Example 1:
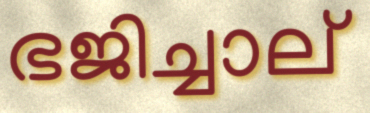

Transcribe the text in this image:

ഭജിച്ചാല്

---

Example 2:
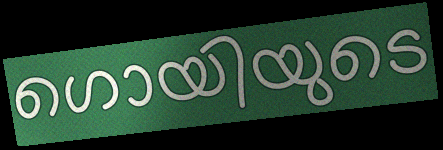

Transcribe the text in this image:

ഗൊയിയുടെ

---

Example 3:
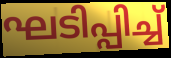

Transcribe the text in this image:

ഘടിപ്പിച്ച്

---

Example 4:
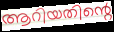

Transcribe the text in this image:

ആറിയതിന്റെ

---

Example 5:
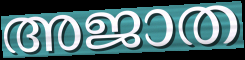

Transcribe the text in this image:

അജാത